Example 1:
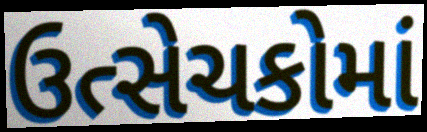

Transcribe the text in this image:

ઉત્સેચકોમાં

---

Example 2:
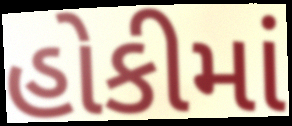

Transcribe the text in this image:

હોકીમાં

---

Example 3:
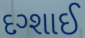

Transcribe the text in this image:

દગ્શાઈ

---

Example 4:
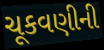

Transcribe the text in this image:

ચૂકવણીની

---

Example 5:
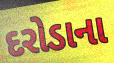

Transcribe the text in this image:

દરોડાના